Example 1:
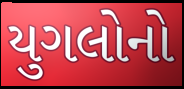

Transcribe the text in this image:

યુગલોનો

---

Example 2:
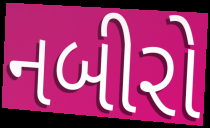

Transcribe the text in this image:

નબીરો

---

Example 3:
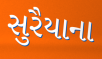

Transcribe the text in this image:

સુરૈયાના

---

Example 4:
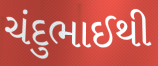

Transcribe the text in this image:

ચંદુભાઈથી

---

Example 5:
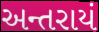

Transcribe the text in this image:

અન્તરાયં